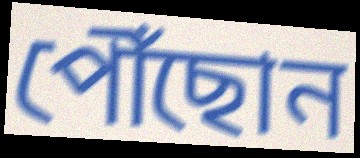
পৌঁছোন